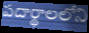
పదార్థాలలోని